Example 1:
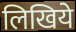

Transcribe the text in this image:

लिखिये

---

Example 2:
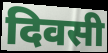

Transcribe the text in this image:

दिवसी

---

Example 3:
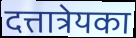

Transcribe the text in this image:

दत्तात्रेयका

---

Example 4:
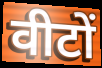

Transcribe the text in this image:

वीटों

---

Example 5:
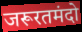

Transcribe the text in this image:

जरूरतमंदो